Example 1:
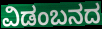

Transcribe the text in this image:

ವಿಡಂಬನದ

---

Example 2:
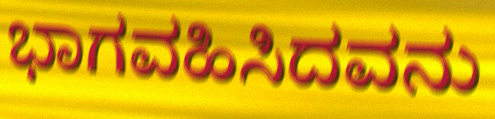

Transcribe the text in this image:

ಭಾಗವಹಿಸಿದವನು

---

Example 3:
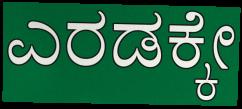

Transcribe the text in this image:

ಎರಡಕ್ಕೇ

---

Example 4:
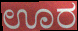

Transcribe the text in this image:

ಊರ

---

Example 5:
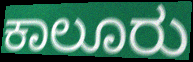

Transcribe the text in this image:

ಕಾಲೂರು